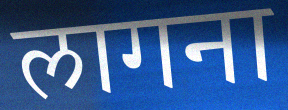
लागना